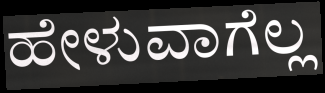
ಹೇಳುವಾಗೆಲ್ಲ